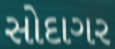
સોદાગર